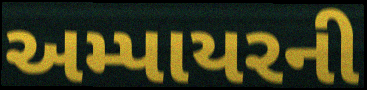
અમ્પાયરની